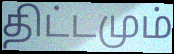
திட்டமும்